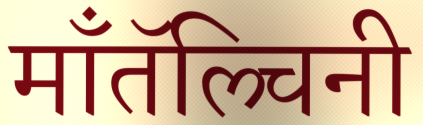
माँतॅल्चिनी